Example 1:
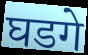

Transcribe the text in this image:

घडगे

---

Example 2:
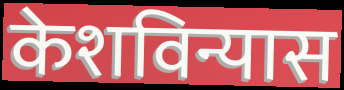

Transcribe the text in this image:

केशविन्यास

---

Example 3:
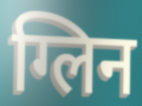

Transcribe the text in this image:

ग्लिन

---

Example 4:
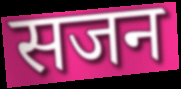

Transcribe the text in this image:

सजन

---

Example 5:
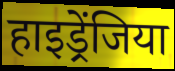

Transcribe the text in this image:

हाइड्रेंजिया